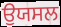
ਉਯਸਲ